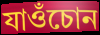
যাওঁচোন